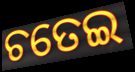
ଚତେଇ